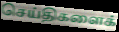
செய்திகளைக்